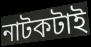
নাটকটাই